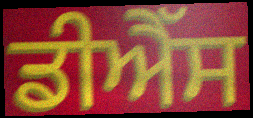
ਡੀਐੱਸ